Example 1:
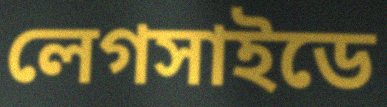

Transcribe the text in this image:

লেগসাইডে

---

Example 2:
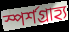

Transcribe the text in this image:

স্পর্শগ্রাহ্য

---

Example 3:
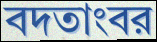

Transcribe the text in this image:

বদতাংবর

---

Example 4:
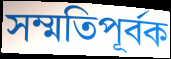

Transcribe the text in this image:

সম্মতিপূর্বক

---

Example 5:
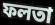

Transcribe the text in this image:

ফলতা